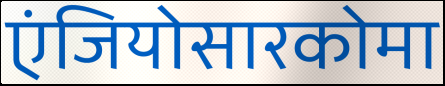
एंजियोसारकोमा